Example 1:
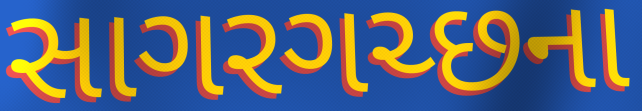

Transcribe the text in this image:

સાગરગચ્છના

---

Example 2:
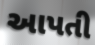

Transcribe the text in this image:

આપતી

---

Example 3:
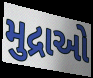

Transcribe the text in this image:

મુદ્રાઓ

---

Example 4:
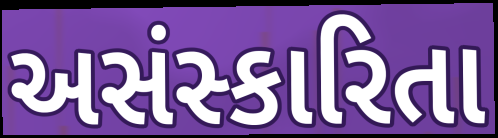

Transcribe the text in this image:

અસંસ્કારિતા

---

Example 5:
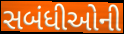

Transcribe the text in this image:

સબંધીઓની